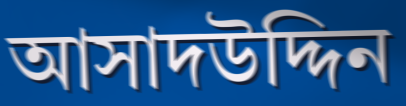
আসাদউদ্দিন